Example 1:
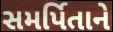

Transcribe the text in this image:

સમર્પિતાને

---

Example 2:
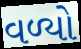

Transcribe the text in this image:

વળ્યો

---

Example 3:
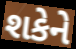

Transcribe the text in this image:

શકેને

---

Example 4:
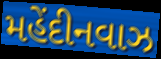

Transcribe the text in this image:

મહેંદીનવાઝ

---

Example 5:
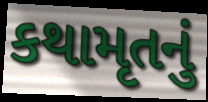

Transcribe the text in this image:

કથામૃતનું